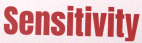
Sensitivity